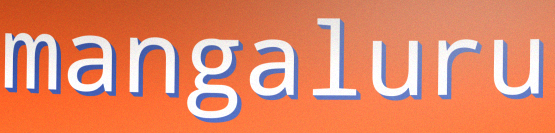
mangaluru